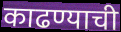
काढण्याची